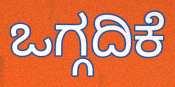
ಒಗ್ಗದಿಕೆ